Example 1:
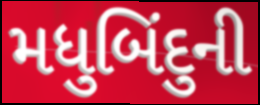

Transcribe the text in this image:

મધુબિંદુની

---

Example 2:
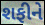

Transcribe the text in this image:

શફીને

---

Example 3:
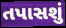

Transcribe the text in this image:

તપાસશું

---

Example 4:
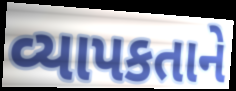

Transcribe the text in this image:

વ્યાપકતાને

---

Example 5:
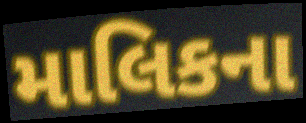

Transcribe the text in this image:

માલિકના